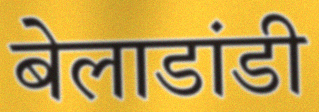
बेलाडांडी